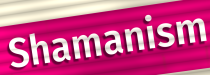
Shamanism